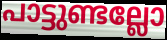
പാട്ടുണ്ടല്ലോ